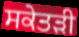
ਸਕੇਤੜੀ